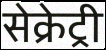
सेक्रेट्री